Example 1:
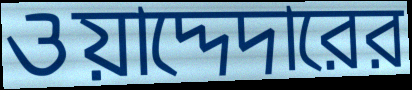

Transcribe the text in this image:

ওয়াদ্দেদারের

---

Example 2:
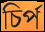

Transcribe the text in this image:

চির্প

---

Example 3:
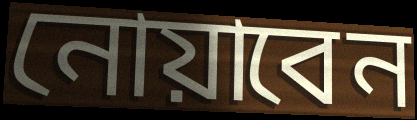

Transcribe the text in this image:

নোয়াবেন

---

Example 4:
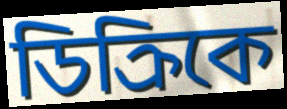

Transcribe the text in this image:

ডিক্রিকে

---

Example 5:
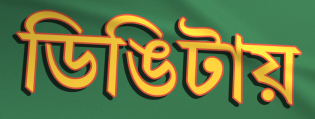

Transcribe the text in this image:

ডিঙিটায়